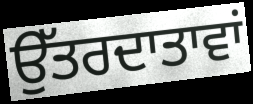
ਉੱਤਰਦਾਤਾਵਾਂ